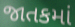
જાતકમાં